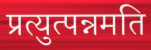
प्रत्युत्पन्नमति